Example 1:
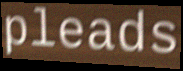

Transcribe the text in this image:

pleads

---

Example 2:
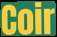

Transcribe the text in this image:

Coir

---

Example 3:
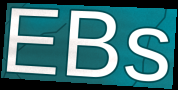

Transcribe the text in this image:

EBs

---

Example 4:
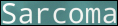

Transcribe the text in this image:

Sarcoma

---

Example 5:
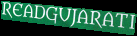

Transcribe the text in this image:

READGUJARATI